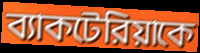
ব্যাকটেরিয়াকে